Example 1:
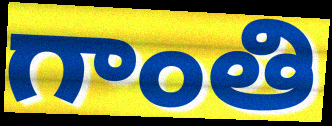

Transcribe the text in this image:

గాంతి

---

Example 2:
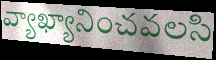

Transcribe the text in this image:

వ్యాఖ్యానించవలసి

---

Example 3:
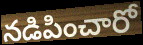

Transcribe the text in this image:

నడిపించారో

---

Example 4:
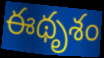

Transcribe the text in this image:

ఈథృశం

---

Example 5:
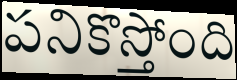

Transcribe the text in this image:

పనికొస్తోంది